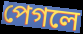
পেগলে